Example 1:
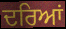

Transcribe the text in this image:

ਦਰਿਆਂ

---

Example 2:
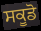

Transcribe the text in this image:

ਸਕੂਡੋ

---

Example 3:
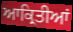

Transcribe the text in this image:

ਆਕ੍ਰਿਤੀਆਂ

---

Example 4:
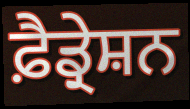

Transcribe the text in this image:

ਫ਼ੈਡ੍ਰੇਸ਼ਨ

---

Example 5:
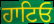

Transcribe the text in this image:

ਹਾਟਿਓ